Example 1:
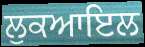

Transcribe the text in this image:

ਲੁਕਆਇਲ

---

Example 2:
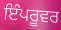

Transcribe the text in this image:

ਇੰਪਰੂਵਰ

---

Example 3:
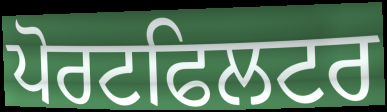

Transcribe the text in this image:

ਪੋਰਟਫਿਲਟਰ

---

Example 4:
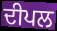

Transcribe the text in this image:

ਦੀਪਲ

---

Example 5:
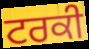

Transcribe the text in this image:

ਟਰਕੀ